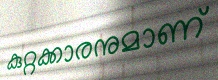
കുറ്റക്കാരനുമാണ്